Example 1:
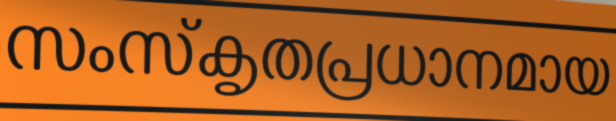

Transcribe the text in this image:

സംസ്‌കൃതപ്രധാനമായ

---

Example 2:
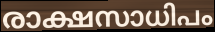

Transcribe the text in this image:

രാക്ഷസാധിപം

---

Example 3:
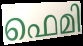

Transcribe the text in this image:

ഫെമി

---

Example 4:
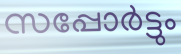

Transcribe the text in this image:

സപ്പോർട്ടും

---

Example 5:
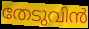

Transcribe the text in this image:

തേടുവിൻ